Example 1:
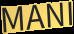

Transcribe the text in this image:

MANI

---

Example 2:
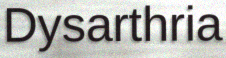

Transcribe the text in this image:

Dysarthria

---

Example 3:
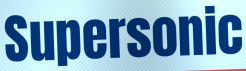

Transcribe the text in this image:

Supersonic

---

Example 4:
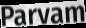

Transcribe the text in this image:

Parvam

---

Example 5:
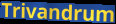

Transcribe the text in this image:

Trivandrum